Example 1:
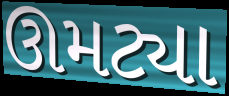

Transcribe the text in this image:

ઊમટ્યા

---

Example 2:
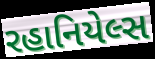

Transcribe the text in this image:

રહાનિયેલ્સ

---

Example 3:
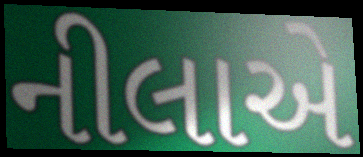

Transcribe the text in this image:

નીલાએ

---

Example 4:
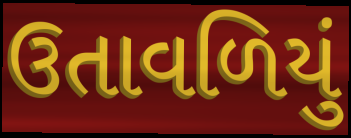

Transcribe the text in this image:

ઉતાવળિયું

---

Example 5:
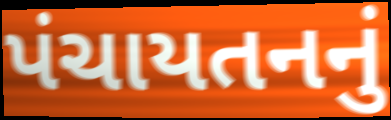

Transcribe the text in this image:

પંચાયતનનું